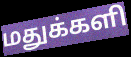
மதுக்களி